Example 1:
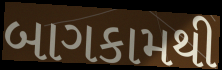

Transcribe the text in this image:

બાગકામથી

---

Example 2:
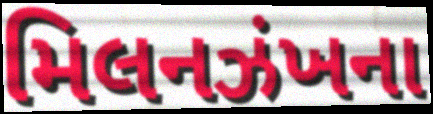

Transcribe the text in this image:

મિલનઝંખના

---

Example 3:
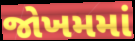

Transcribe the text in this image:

જોખમમાં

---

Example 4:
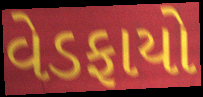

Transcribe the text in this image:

વેડફાયો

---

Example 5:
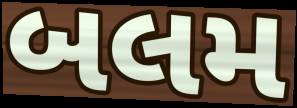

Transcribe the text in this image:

બલમ